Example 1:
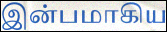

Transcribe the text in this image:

இன்பமாகிய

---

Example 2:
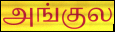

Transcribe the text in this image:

அங்குல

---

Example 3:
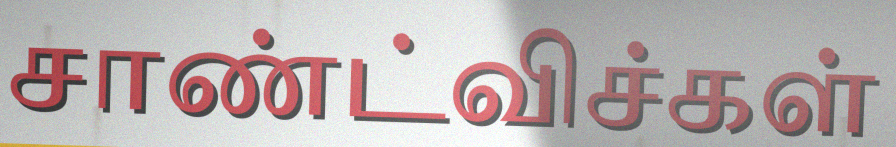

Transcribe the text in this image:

சாண்ட்விச்கள்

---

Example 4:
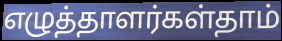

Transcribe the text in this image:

எழுத்தாளர்கள்தாம்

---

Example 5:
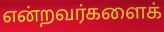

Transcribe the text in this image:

என்றவர்களைக்